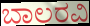
ಬಾಲರವಿ